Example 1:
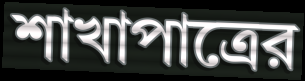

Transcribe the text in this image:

শাখাপাত্রের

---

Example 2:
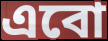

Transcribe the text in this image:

এবো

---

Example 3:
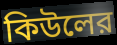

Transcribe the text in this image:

কিউলের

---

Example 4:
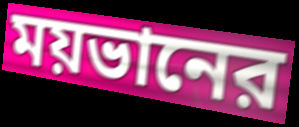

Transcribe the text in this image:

ময়ভানের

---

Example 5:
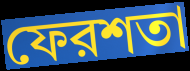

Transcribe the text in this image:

ফেরশতা